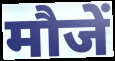
मौजें